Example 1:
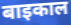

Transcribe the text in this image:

बाइकाल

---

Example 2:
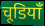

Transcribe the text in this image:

चूडियाँ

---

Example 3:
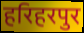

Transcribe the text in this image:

हरिहरपुर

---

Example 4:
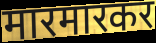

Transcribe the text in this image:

मारमारकर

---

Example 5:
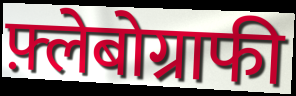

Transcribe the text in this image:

फ़्लेबोग्राफी